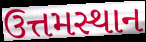
ઉત્તમસ્થાન